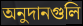
অনুদানগুলি